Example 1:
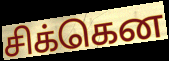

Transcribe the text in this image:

சிக்கென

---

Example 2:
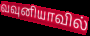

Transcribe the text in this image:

வவுனியாவில்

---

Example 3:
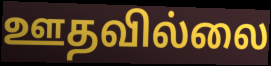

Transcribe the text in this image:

ஊதவில்லை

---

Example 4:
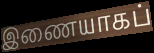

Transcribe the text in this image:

இணையாகப்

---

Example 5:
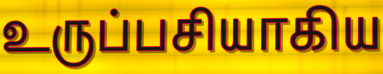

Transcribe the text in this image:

உருப்பசியாகிய